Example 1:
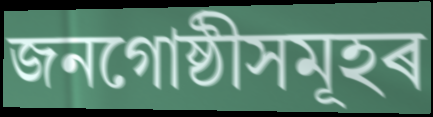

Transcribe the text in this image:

জনগোষ্ঠীসমূহৰ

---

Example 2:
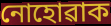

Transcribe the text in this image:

নোহোৱাক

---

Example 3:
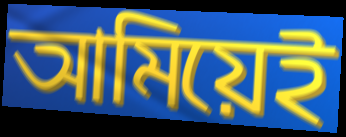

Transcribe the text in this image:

আমিয়েই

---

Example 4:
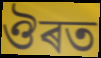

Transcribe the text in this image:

ঔৰত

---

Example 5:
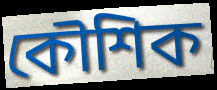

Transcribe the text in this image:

কৌশিক